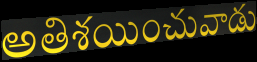
అతిశయించువాడు